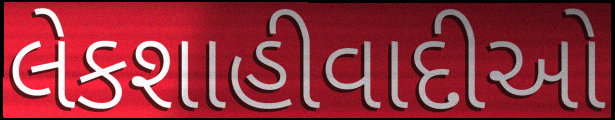
લેકશાહીવાદીઓ